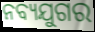
ନବ୍ୟଯୁଗର